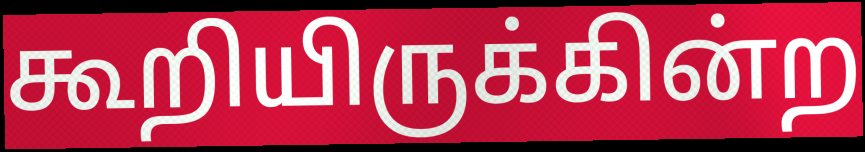
கூறியிருக்கின்ற